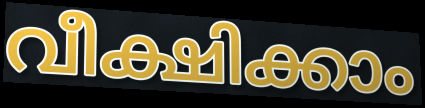
വീക്ഷിക്കാം